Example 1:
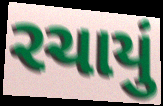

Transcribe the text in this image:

રચાયું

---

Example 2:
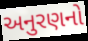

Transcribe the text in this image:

અનુરણનો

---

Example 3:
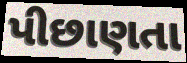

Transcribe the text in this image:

પીછાણતા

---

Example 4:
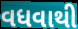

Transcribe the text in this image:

વધવાથી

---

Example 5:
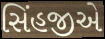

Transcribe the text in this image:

સિંહજીએ